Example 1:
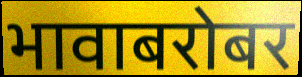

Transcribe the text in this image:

भावाबरोबर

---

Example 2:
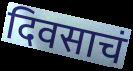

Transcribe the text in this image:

दिवसाचं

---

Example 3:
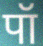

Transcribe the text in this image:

पॉ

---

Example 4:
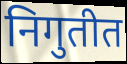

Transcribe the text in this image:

निगुतीत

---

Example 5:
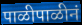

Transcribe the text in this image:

पाळीपाळीनं